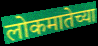
लोकमातेच्या